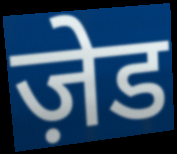
ज़ेड